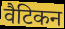
वैटिकन